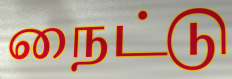
நைட்டு